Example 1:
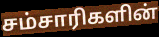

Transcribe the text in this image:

சம்சாரிகளின்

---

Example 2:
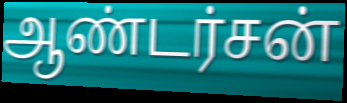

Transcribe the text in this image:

ஆண்டர்சன்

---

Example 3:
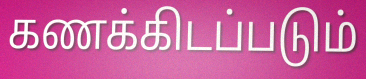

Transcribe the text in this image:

கணக்கிடப்படும்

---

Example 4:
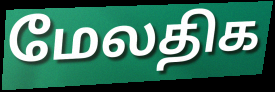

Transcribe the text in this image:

மேலதிக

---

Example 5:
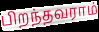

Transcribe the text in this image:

பிறந்தவராம்